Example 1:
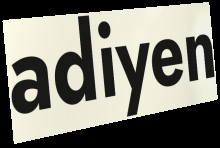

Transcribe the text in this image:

adiyen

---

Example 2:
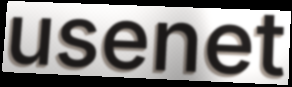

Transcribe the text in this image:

usenet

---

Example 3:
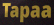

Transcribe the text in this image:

Tapaa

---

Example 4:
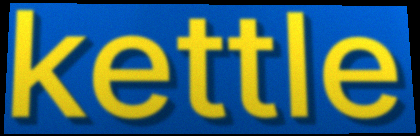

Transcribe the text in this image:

kettle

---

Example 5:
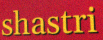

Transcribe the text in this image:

shastri